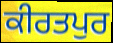
ਕੀਰਤਪੁਰ